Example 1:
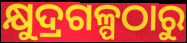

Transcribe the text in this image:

କ୍ଷୁଦ୍ରଗଳ୍ପଠାରୁ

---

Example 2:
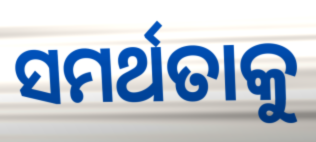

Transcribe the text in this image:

ସମର୍ଥତାକୁ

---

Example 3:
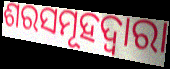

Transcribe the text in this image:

ଶରସମୂହଦ୍ୱାରା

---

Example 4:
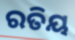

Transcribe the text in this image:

ରତିୟ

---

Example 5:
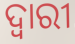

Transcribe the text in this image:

ଦ୍ଵାରୀ